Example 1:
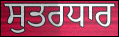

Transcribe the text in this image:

ਸੁਤਰਧਾਰ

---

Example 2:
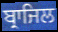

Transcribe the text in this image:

ਬ੍ਰਾਜਿਲ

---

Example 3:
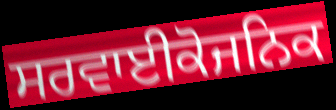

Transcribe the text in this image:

ਸਰਵਾਈਕੋਜਨਿਕ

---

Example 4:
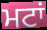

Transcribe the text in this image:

ਮਟਾਂ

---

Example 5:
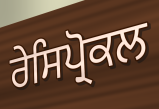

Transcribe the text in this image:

ਰੇਸਿਪ੍ਰੋਕਲ